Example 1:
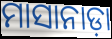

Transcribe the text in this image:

ମାସାନାଡ଼ା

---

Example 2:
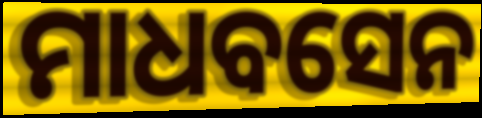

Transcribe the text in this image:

ମାଧବସେନ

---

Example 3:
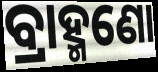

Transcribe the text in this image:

ବ୍ରାହ୍ମଣୋ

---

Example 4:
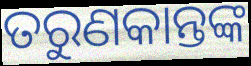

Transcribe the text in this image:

ତରୁଣକାନ୍ତଙ୍କ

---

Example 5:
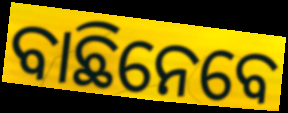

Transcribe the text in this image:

ବାଛିନେବେ